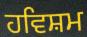
ਹਵਿਸ਼ਮ